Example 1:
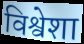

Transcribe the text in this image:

विश्वेशा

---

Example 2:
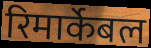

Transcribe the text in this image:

रिमार्केबल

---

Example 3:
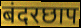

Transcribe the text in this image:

बंदरछाप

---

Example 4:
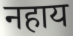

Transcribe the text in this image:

नहाय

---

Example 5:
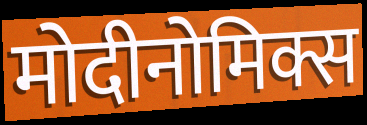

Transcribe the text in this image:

मोदीनोमिक्स